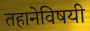
तहानेविषयी